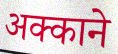
अक्काने